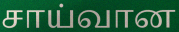
சாய்வான